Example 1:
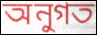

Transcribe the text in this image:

অনুগত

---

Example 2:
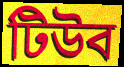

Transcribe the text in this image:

টিউব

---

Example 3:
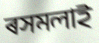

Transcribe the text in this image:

ৰসমলাই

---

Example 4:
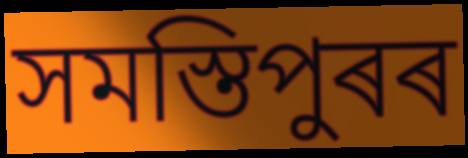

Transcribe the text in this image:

সমস্তিপুৰৰ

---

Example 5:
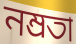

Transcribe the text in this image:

নম্ৰতা